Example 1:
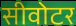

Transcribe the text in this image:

सीवोटर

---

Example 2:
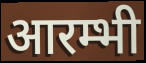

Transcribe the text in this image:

आरम्भी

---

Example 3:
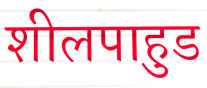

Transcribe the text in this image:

शीलपाहुड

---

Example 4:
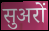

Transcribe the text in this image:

सुअरों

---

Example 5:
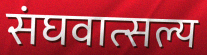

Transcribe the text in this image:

संघवात्सल्य